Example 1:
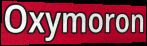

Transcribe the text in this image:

Oxymoron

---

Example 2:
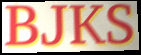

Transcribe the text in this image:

BJKS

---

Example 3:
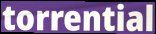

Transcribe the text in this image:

torrential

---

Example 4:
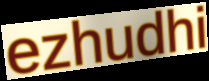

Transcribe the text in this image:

ezhudhi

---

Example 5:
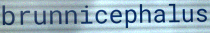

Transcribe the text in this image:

brunnicephalus